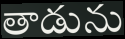
తాడును